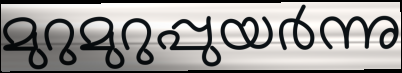
മുറുമുറുപ്പുയർന്നു